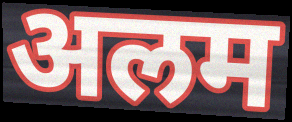
अलम